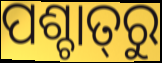
ପଶ୍ଚାତ୍‌ରୁ